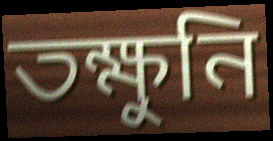
তক্ষুনি